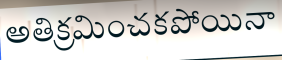
అతిక్రమించకపోయినా